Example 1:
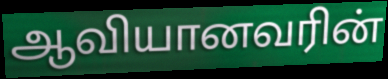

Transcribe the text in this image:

ஆவியானவரின்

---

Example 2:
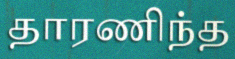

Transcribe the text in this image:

தாரணிந்த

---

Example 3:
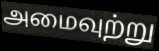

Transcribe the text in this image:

அமைவுற்று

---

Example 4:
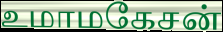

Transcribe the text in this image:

உமாமகேசன்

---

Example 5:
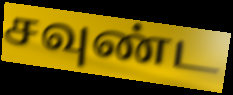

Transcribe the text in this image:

சவுண்ட